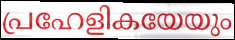
പ്രഹേളികയേയും